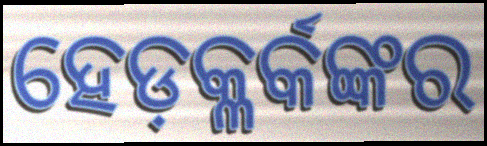
ହେଡ଼କ୍ଳର୍କଙ୍କର